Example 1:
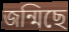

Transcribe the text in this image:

জন্মিছে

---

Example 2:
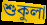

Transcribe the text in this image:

শুকুলা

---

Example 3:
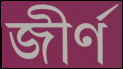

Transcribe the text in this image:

জীৰ্ণ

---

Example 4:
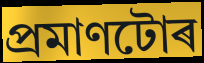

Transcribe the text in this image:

প্ৰমাণটোৰ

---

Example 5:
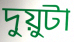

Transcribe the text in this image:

দুয়ুটা